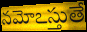
నమోఽస్తుతే